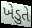
ખેડુતે